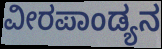
ವೀರಪಾಂಡ್ಯನ